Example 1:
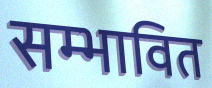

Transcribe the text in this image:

सम्भावित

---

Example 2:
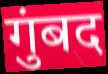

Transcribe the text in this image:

गुंबद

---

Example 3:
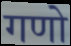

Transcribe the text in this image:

गणो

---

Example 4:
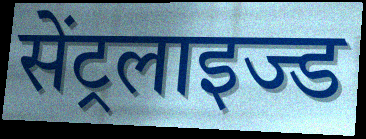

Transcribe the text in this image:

सेंट्रलाइज्ड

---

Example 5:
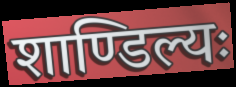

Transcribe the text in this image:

शाण्डिल्यः